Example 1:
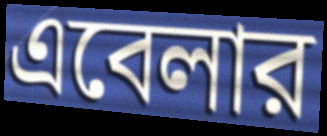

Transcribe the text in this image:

এবেলার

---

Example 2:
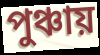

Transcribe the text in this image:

পুঞ্চায়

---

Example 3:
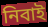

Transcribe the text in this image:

নিবাই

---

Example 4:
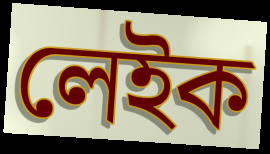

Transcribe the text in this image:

লেইক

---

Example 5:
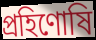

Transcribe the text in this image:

প্রহিণোষি